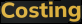
Costing